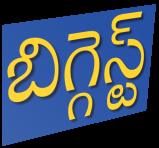
బిగ్గెస్ట్